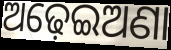
ଅଢ଼େଇଅଣା